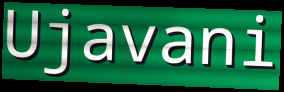
Ujavani